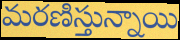
మరణిస్తున్నాయి